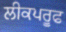
ਲੀਕਪਰੂਫ